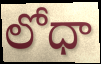
లోధా